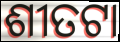
ଶୀତଟା